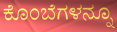
ಕೊಂಬೆಗಳನ್ನೂ